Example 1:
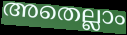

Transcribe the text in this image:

അതെല്ലാം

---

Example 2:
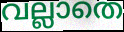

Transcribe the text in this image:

വല്ലാതെ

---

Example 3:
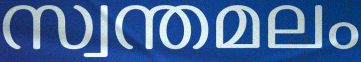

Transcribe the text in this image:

സ്വന്തമലം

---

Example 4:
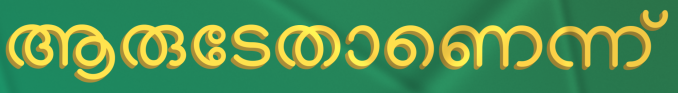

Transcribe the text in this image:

ആരുടേതാണെന്ന്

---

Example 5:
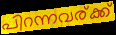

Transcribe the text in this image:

പിറന്നവര്ക്ക്